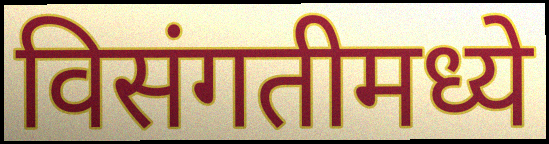
विसंगतीमध्ये